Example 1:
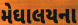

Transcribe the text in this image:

મેઘાલયના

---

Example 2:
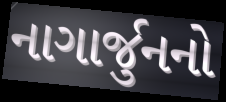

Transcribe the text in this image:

નાગાર્જુનનો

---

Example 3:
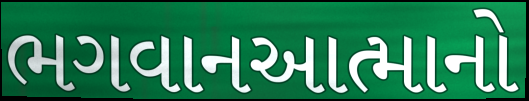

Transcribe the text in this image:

ભગવાનઆત્માનો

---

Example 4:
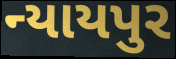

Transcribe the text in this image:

ન્યાયપુર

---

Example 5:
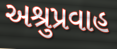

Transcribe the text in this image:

અશ્રુપ્રવાહ